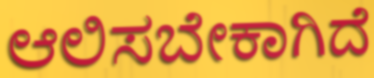
ಆಲಿಸಬೇಕಾಗಿದೆ